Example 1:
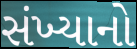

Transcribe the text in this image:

સંખ્યાનો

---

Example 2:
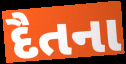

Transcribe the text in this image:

દૈતના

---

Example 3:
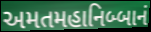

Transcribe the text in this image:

અમતમહાનિબ્બાનં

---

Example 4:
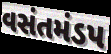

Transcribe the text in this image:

વસંતમંડપ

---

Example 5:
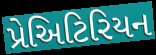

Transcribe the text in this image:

પ્રેઅિટિરિયન